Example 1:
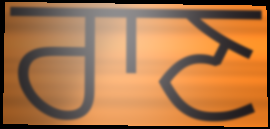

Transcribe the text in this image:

ਰਾਣ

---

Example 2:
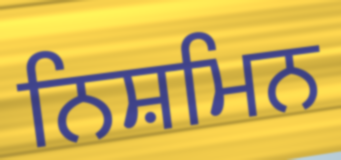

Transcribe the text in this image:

ਨਿਸ਼ਮਿਨ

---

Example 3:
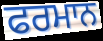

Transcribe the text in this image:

ਫਰਮਾਨ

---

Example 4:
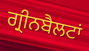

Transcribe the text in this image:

ਗ੍ਰੀਨਬੈਲਟਾਂ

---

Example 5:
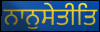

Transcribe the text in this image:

ਨਾਨੁਸੇਤੀਤਿ